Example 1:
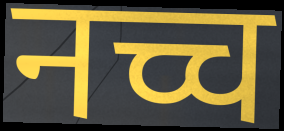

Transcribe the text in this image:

नच्च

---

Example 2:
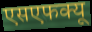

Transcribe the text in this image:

एसएफक्यू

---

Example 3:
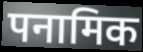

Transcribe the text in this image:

पनामिक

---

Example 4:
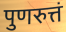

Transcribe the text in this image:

पुणरुत्तं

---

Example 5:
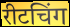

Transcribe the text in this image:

रीटचिंग